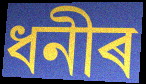
ধনীৰ